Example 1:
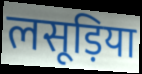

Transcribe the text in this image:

लसूड़िया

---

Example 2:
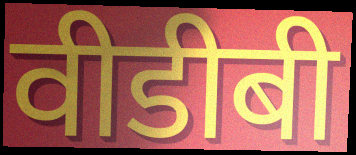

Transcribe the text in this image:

वीडीबी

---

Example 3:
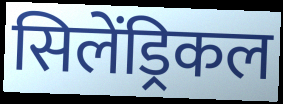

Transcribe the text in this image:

सिलेंड्रिकल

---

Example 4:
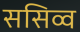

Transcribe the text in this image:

ससिव्व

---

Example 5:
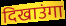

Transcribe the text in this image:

दिखाउंगा